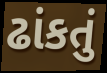
ઢાંકતું